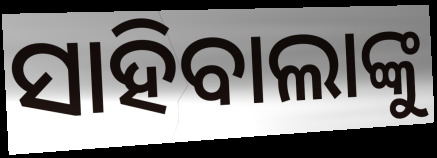
ସାହିବାଲାଙ୍କୁ